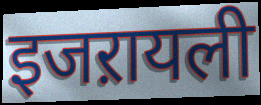
इजऱायली